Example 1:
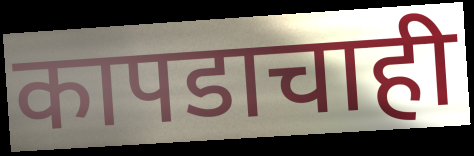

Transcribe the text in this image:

कापडाचाही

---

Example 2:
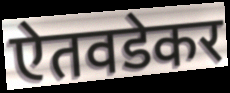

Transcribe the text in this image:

ऐतवडेकर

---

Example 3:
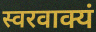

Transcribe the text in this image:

स्वरवाक्यं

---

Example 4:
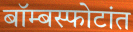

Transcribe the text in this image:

बॉम्बस्फोटांत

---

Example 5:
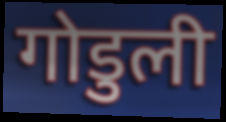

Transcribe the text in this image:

गोडुली